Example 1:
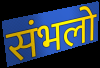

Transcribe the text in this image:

संभलो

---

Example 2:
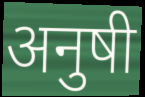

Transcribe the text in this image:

अनुषी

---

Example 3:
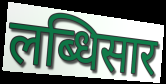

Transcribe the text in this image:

लब्धिसार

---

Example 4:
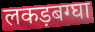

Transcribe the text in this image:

लकड़बग्घा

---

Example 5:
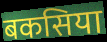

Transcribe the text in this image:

बकसिया